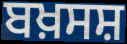
ਬਖ਼ਸਸ਼